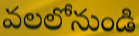
వలలోనుండి